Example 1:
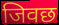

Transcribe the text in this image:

जिवछ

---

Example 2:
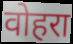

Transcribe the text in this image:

वोहरा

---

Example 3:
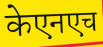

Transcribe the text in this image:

केएनएच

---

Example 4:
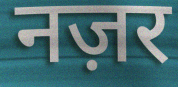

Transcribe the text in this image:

नज़र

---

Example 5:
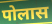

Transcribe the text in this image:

पोलास